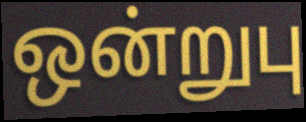
ஒன்றுபு